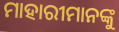
ମାହାରୀମାନଙ୍କୁ